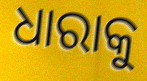
ଧାରାକୁ